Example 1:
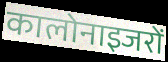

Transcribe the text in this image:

कालोनाइजरों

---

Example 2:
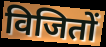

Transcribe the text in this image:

विजितों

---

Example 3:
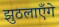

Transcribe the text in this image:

झुठलाएँगे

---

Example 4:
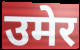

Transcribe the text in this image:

उमेर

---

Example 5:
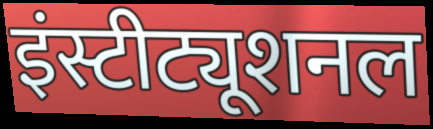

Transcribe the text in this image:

इंस्टीट्यूशनल